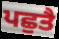
ਪਛੁਤੈ